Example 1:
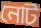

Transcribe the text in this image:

নোট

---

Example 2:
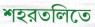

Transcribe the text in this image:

শহরতলিতে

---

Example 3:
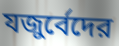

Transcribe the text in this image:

যজুর্বেদের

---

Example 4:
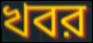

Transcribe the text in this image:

খবর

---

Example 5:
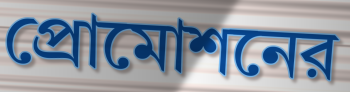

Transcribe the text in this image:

প্রোমোশনের